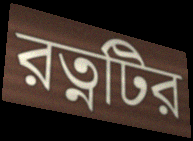
রত্নটির